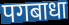
पगबाधा